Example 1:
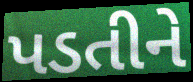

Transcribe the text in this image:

પડતીને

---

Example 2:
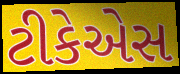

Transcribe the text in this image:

ટીકેએસ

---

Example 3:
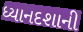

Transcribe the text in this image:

ધ્યાનદશાની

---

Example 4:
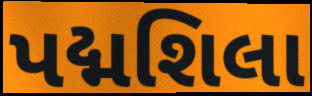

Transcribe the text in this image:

પદ્મશિલા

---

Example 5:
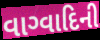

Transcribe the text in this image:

વાગ્વાદિની